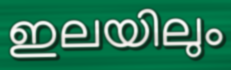
ഇലയിലും